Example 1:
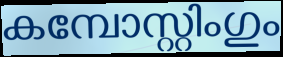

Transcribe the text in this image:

കമ്പോസ്റ്റിംഗും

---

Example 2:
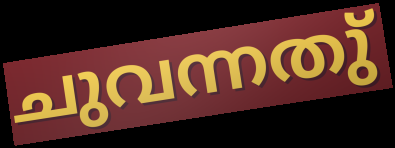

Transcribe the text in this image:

ചുവന്നതു്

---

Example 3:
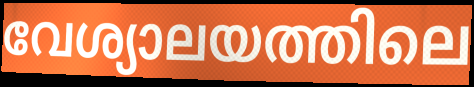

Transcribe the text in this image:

വേശ്യാലയത്തിലെ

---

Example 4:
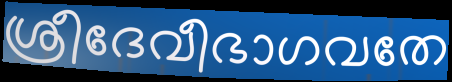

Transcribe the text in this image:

ശ്രീദേവീഭാഗവതേ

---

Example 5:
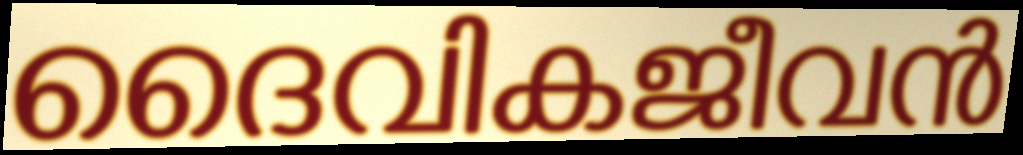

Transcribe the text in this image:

ദൈവികജീവൻ